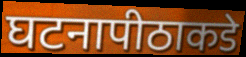
घटनापीठाकडे